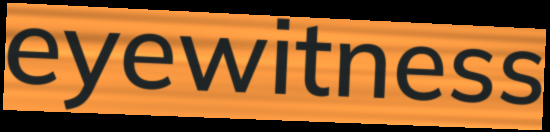
eyewitness